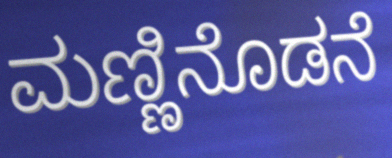
ಮಣ್ಣಿನೊಡನೆ